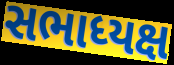
સભાધ્યક્ષ